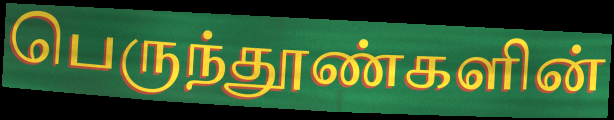
பெருந்தூண்களின்